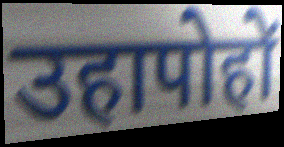
उहापोहों